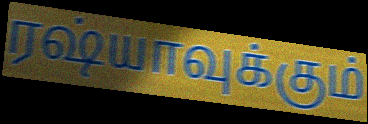
ரஷ்யாவுக்கும்